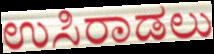
ಉಸಿರಾಡಲು